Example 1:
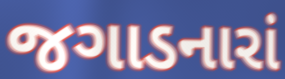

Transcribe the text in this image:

જગાડનારાં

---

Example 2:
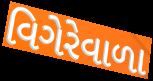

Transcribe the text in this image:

વિગેરેવાળા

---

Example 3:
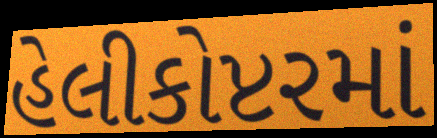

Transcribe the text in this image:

હેલીકોપ્ટરમાં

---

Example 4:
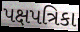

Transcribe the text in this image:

પક્ષપત્રિકા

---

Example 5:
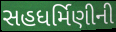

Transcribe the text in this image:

સહધર્મિણીની